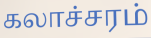
கலாச்சரம்